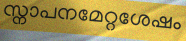
സ്നാപനമേറ്റശേഷം